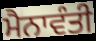
ਮੈਨਾਵੰਤੀ